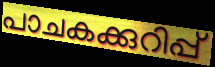
പാചകക്കുറിപ്പ്